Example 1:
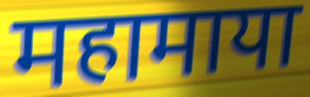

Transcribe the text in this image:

महामाया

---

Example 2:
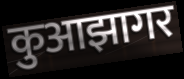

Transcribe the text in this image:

कुआझागर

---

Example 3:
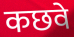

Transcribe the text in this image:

कछवे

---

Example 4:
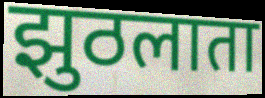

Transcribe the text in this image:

झुठलाता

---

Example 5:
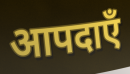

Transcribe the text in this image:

आपदाएँ